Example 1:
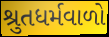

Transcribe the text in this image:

શ્રુતધર્મવાળો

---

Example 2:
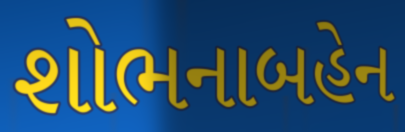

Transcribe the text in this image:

શોભનાબહેન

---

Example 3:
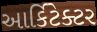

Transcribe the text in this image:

આર્કિટેક્ટર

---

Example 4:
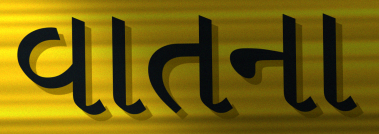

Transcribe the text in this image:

વાતના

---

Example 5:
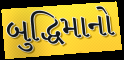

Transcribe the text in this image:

બુદ્ધિમાનો